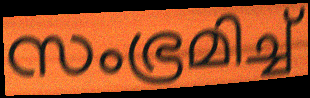
സംഭ്രമിച്ച്